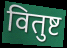
वितुष्ट